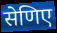
सेणिए